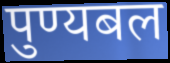
पुण्यबल